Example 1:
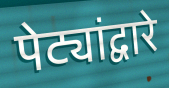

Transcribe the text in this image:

पेट्यांद्वारे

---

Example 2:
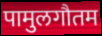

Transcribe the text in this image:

पामुलगौतम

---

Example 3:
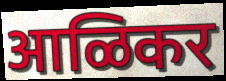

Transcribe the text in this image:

आळिकर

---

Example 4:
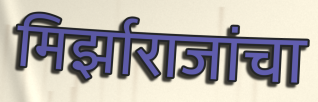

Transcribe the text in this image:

मिर्झाराजांचा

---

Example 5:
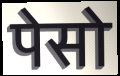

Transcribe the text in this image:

पेसो